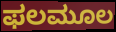
ಫಲಮೂಲ